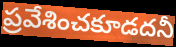
ప్రవేశించకూడదనీ